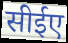
सीईए